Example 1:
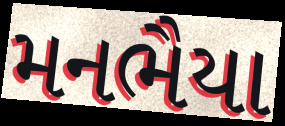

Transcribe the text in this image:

મનભૈયા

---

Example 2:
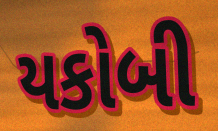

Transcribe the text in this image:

યકોબી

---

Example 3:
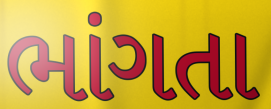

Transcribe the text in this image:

ભાંગતા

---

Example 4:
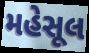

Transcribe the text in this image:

મહેસૂલ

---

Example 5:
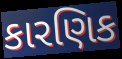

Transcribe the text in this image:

કારણિક